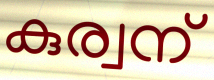
കുര്വന്